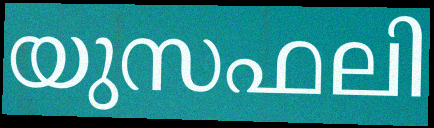
യുസഫലി